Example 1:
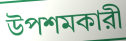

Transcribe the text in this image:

উপশমকারী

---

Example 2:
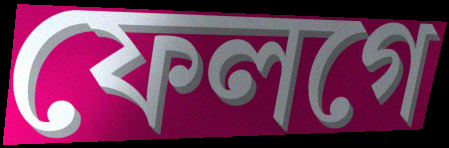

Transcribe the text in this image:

ফেলগে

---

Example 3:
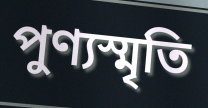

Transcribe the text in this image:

পুণ্যস্মৃতি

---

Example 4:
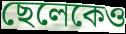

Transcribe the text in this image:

ছেলেকেও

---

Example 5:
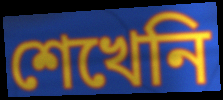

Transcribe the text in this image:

শেখেনি